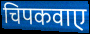
चिपकवाए